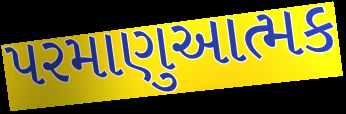
પરમાણુઆત્મક